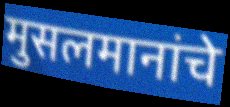
मुसलमानांचे